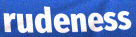
rudeness